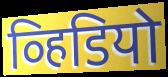
व्हिडियो